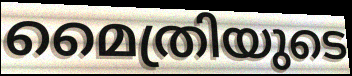
മൈത്രിയുടെ